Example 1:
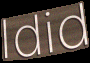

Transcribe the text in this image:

Idid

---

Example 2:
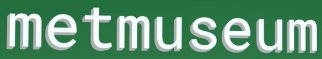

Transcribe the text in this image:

metmuseum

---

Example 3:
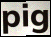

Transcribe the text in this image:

pig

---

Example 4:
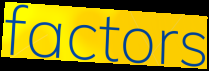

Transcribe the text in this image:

factors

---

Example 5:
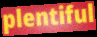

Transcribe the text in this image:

plentiful